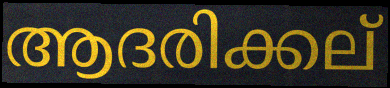
ആദരിക്കല്